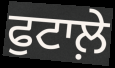
ਫੁਟਾਲ਼ੇ